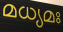
മധ്യമഃ